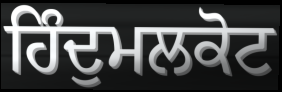
ਹਿੰਦੁਮਲਕੋਟ